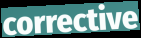
corrective